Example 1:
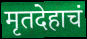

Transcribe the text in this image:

मृतदेहाचं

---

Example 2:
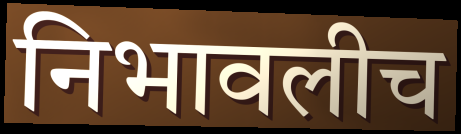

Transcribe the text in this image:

निभावलीच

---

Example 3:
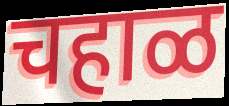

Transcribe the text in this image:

चहाळ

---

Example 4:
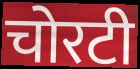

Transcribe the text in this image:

चोरटी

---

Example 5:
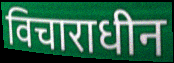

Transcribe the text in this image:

विचाराधीन